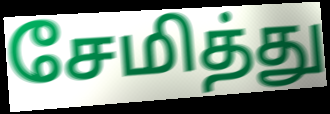
சேமித்து